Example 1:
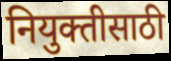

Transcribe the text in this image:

नियुक्तीसाठी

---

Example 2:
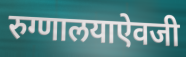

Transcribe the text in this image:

रुग्णालयाऐवजी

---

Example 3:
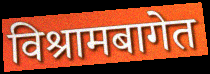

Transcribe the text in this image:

विश्रामबागेत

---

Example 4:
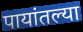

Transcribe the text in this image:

पायांतल्या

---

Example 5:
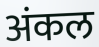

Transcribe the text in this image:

अंकल